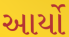
આર્યો